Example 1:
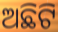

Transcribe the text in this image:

ଅଛିଟି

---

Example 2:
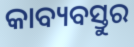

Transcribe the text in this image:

କାବ୍ୟବସ୍ତୁର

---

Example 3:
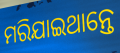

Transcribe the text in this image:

ମରିଯାଇଥାନ୍ତେ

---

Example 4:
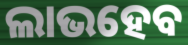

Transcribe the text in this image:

ଲାଭହେବ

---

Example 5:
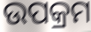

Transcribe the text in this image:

ଉପକ୍ରମ